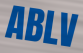
ABLV